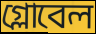
গ্লোবেল